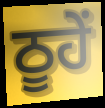
ਠੂਹੇਂ